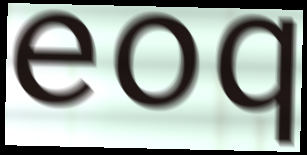
eoq